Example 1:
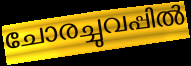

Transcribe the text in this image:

ചോരച്ചുവപ്പിൽ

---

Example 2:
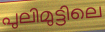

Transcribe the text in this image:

പുലിമുട്ടിലെ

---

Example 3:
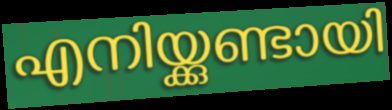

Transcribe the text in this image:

എനിയ്ക്കുണ്ടായി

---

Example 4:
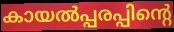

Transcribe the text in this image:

കായൽപ്പരപ്പിന്റെ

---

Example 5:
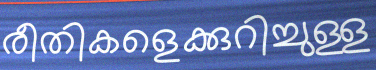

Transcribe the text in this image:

രീതികളെക്കുറിച്ചുള്ള